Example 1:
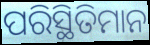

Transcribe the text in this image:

ପରିସ୍ଥିତିମାନ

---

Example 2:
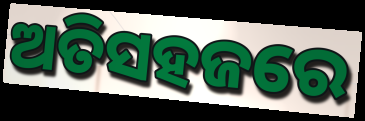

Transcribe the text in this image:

ଅତିସହଜରେ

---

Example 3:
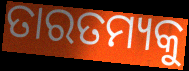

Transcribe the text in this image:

ତାରତମ୍ୟକୁ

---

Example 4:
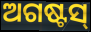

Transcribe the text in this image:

ଅଗଷ୍ଟସ୍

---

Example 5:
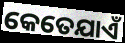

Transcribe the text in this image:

କେତେଯାଏଁ